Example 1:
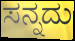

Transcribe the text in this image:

ಸನ್ನದು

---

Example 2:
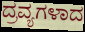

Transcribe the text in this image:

ದ್ರವ್ಯಗಳಾದ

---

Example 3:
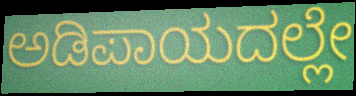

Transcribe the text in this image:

ಅಡಿಪಾಯದಲ್ಲೇ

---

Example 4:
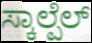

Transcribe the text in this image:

ಸ್ಕಾಲ್ಪೆಲ್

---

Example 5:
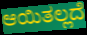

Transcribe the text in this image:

ಆಯಿತಲ್ಲದೆ